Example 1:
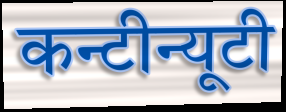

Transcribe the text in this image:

कन्टीन्यूटी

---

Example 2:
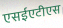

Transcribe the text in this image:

एसईएटीएस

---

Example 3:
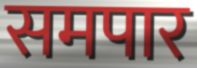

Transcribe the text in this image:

समपार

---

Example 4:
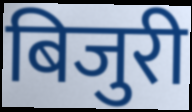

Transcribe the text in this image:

बिजुरी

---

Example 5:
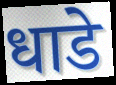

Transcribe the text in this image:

धाडे